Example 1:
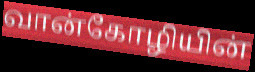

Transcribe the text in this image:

வான்கோழியின்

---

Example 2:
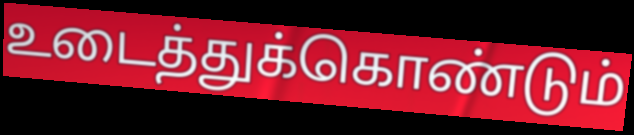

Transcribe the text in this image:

உடைத்துக்கொண்டும்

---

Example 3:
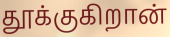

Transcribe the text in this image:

தூக்குகிறான்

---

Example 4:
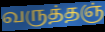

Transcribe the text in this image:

வருத்தஞ்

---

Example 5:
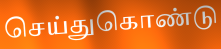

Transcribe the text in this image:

செய்துகொண்டு